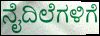
ನೈದಿಲೆಗಳಿಗೆ